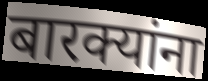
बारक्यांना